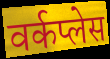
वर्कप्लेस